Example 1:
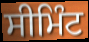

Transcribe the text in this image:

ਸੀਮਿੰਟ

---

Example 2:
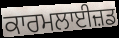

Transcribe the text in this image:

ਕਾਰਮਲਾਈਜ਼ਡ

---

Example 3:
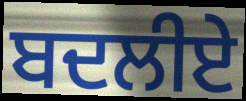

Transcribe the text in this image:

ਬਦਲੀਏ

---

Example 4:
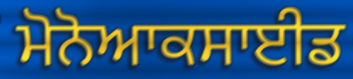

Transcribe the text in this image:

ਮੋਨੋਆਕਸਾਈਡ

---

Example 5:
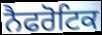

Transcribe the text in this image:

ਨੈਫਰੋਟਿਕ